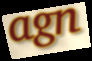
agn